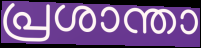
പ്രശാന്താ